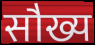
सौख्य